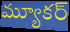
మ్యూకర్